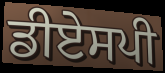
ਡੀਏਸਪੀ